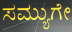
ಸಮ್ಯುಗೇ